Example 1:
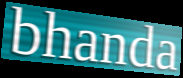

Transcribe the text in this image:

bhanda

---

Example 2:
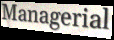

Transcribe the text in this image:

Managerial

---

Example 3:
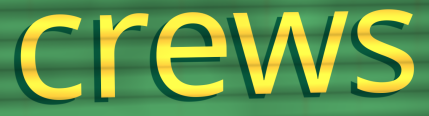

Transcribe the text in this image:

crews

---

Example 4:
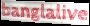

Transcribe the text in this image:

banglalive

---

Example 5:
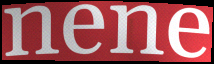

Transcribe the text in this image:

nene